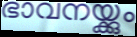
ഭാവനയ്ക്കും